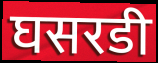
घसरडी